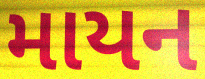
માયન